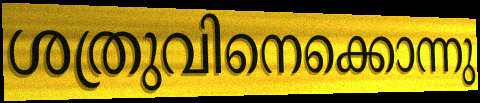
ശത്രുവിനെക്കൊന്നു